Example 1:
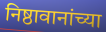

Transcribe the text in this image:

निष्ठावानांच्या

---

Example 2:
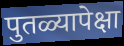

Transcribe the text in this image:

पुतळ्यापेक्षा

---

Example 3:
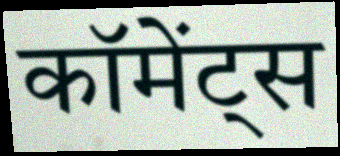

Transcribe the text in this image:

कॉमेंट्स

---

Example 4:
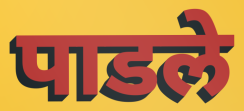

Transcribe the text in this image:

पाडले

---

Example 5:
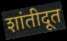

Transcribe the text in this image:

शांतीदूत